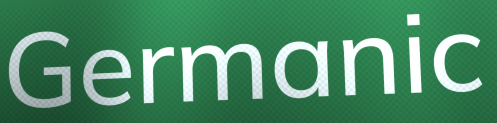
Germanic